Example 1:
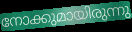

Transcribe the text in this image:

നോക്കുമായിരുന്നു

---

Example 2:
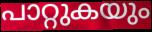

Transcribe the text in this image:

പാറ്റുകയും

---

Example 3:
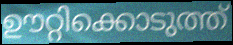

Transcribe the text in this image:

ഊറ്റിക്കൊടുത്ത്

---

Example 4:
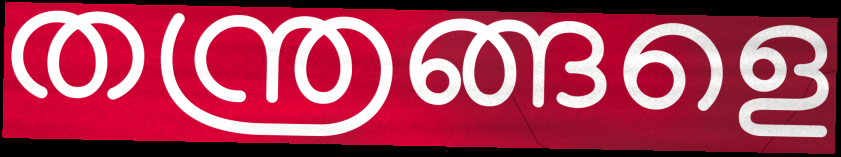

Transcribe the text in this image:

തന്ത്രങ്ങളെ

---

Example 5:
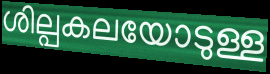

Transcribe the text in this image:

ശില്പകലയോടുള്ള